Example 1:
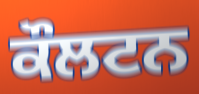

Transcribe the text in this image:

ਕੌਲਟਨ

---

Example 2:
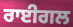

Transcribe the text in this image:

ਰਾਈਗਲ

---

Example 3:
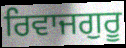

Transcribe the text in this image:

ਰਿਵਾਜਗੁਰੂ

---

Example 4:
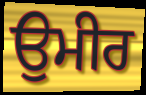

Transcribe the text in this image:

ਉਮੀਰ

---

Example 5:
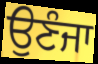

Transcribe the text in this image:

ਉਣੰਜਾ